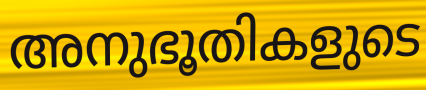
അനുഭൂതികളുടെ